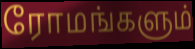
ரோமங்களும்